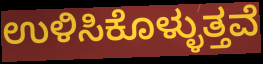
ಉಳಿಸಿಕೊಳ್ಳುತ್ತವೆ